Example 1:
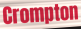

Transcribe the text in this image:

Crompton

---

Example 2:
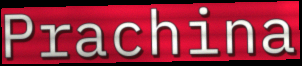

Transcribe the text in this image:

Prachina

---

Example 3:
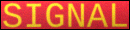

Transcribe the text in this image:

SIGNAL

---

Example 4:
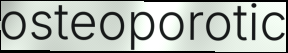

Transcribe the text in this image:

osteoporotic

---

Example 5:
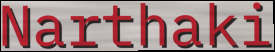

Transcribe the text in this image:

Narthaki